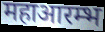
महाआरम्भ